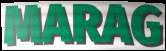
MARAG